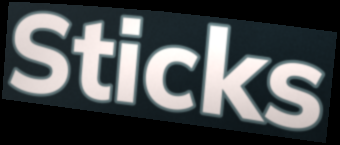
Sticks